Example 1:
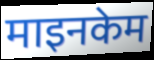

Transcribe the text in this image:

माइनकेम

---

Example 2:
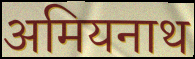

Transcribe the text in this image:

अमियनाथ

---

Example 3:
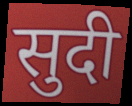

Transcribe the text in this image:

सुदी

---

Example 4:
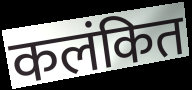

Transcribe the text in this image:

कलंकित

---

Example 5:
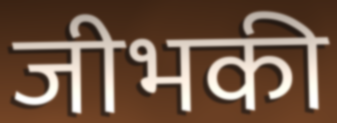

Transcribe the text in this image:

जीभकी